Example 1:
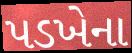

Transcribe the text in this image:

પડખેના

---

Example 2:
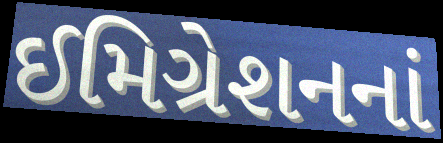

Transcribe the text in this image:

ઈમિગ્રેશનનાં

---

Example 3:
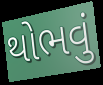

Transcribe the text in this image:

થોભવું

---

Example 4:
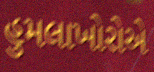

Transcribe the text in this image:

હુમલાખોરોએ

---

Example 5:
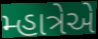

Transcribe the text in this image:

મ્હાત્રેએ